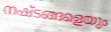
നഷ്ടങ്ങളെയും